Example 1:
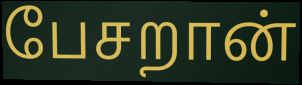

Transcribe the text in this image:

பேசறான்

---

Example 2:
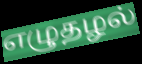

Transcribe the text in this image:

எழுதழல்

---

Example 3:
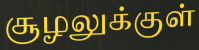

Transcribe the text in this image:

சூழலுக்குள்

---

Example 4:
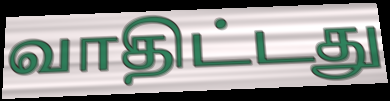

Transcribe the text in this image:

வாதிட்டது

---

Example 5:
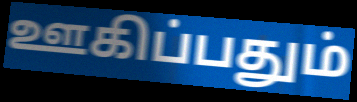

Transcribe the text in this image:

ஊகிப்பதும்